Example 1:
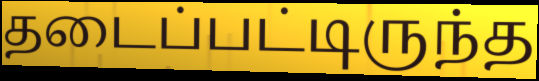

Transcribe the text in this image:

தடைப்பட்டிருந்த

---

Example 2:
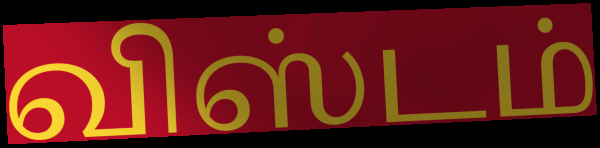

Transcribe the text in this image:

விஸ்டம்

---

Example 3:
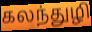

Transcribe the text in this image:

கலந்துழி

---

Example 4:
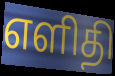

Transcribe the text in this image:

எளிதி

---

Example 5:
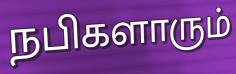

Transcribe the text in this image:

நபிகளாரும்